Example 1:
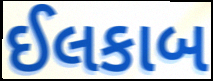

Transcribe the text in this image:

ઈલકાબ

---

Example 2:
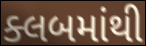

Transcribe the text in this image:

ક્લબમાંથી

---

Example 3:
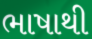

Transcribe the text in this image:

ભાષાથી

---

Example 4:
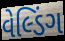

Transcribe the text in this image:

વેલ્ડિંગ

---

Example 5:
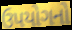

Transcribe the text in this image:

ઉપયોગનો